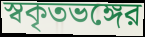
স্বকৃতভঙ্গের